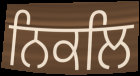
ਨਿਕਲਿ